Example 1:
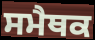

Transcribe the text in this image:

ਸਮੈਥਕ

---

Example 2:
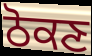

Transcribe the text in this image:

ਠੋਕਣ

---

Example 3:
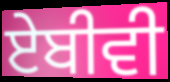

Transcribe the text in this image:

ਏਬੀਵੀ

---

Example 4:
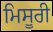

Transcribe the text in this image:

ਮਿਸੂਰੀ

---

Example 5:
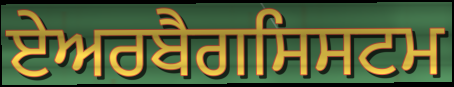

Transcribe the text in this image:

ਏਅਰਬੈਗਸਿਸਟਮ